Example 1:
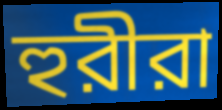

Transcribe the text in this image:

হুরীরা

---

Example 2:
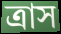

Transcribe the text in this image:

ত্রাস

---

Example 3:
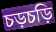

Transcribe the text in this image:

চড়চড়ি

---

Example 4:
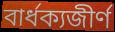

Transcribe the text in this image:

বার্ধক্যজীর্ণ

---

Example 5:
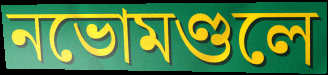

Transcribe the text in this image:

নভোমণ্ডলে